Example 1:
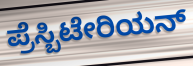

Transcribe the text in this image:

ಪ್ರೆಸ್ಬಿಟೇರಿಯನ್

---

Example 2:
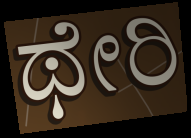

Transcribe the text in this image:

ಥೇರಿ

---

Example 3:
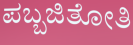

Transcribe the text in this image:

ಪಬ್ಬಜಿತೋತಿ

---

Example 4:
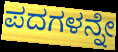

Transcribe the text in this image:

ಪದಗಳನ್ನೇ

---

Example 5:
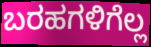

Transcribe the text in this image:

ಬರಹಗಳಿಗೆಲ್ಲ